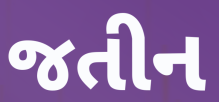
જતીન